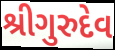
શ્રીગુરુદેવ